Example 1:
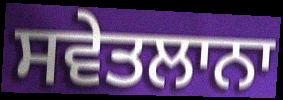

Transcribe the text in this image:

ਸਵੇਤਲਾਨਾ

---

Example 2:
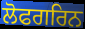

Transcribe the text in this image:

ਲੋਫਗਰਿਨ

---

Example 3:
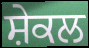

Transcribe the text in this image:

ਸ਼ੇਕਲ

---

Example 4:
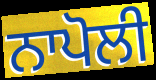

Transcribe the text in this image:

ਨਾਪੋਲੀ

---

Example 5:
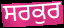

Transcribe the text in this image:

ਸਰਕੁਰ